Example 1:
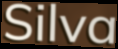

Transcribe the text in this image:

Silva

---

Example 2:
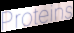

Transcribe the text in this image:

Proteins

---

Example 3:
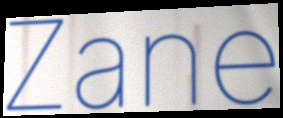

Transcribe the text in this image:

Zane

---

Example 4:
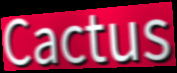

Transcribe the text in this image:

Cactus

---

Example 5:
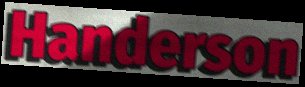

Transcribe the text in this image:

Handerson